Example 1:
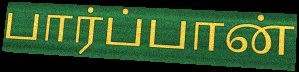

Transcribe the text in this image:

பார்ப்பான்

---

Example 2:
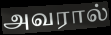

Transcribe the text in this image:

அவரால்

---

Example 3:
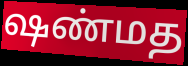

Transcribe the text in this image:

ஷண்மத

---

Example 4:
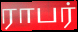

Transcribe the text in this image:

ராபர்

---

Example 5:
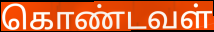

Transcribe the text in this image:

கொண்டவள்